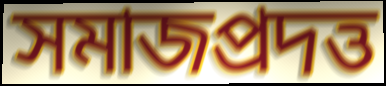
সমাজপ্রদত্ত